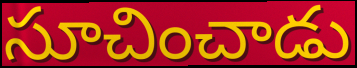
సూచించాడు